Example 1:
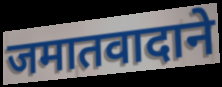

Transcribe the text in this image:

जमातवादाने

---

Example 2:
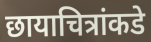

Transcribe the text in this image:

छायाचित्रांकडे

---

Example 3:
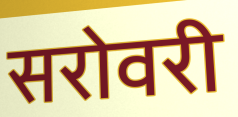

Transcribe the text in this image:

सरोवरी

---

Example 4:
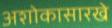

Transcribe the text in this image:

अशोकासारखे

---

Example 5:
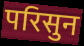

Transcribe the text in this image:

परिसुन